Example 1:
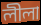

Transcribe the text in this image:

লীলা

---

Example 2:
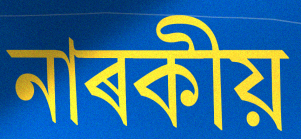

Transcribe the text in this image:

নাৰকীয়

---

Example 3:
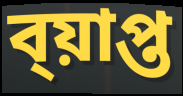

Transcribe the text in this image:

ব্য়াপ্ত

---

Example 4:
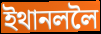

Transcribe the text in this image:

ইথানললৈ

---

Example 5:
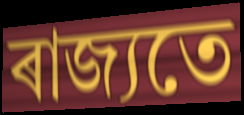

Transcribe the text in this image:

ৰাজ্যতে